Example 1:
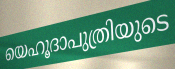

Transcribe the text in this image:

യെഹൂദാപുത്രിയുടെ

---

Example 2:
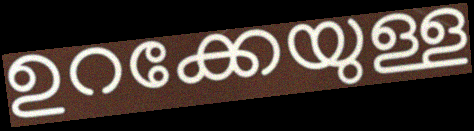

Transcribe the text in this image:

ഉറക്കേയുള്ള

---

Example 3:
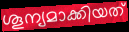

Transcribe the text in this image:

ശൂന്യമാക്കിയത്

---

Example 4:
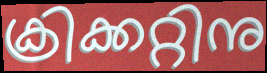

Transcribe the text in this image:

ക്രിക്കറ്റിനു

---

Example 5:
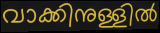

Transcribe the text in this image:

വാക്കിനുള്ളിൽ